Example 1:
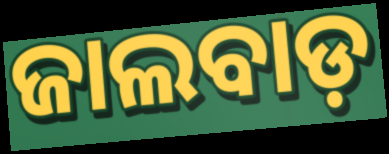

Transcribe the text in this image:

ଜାଲବାଡ଼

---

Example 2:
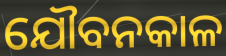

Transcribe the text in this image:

ଯୌବନକାଳ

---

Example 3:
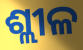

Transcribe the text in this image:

ଶ୍ଲୀଳ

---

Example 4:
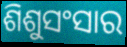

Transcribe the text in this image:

ଶିଶୁସଂସାର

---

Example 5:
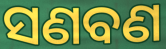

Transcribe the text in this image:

ସଣବଣ